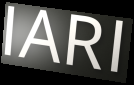
IARI